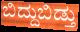
ಬಿದ್ದುಬಿಡ್ತು